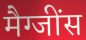
मैग्जींस